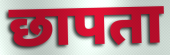
छापता